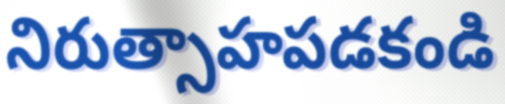
నిరుత్సాహపడకండి